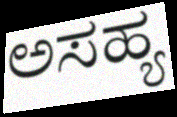
ಅಸಹ್ಯ